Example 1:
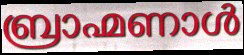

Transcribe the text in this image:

ബ്രാഹ്മണാൾ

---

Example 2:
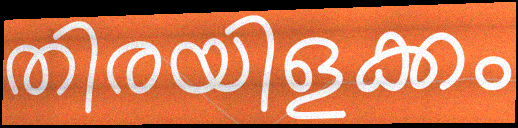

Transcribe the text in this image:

തിരയിളക്കം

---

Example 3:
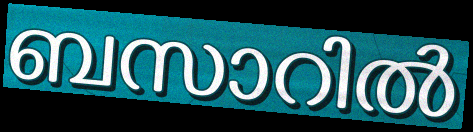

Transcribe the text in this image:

ബസാറിൽ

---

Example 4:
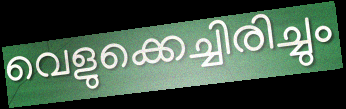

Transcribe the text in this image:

വെളുക്കെച്ചിരിച്ചും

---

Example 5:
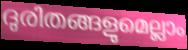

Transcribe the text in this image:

ദുരിതങ്ങളുമെല്ലാം